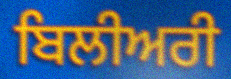
ਬਿਲੀਅਰੀ